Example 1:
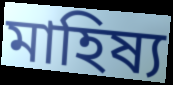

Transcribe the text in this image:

মাহিষ্য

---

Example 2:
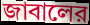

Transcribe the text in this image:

জাবালের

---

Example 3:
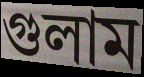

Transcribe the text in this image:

গুলাম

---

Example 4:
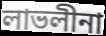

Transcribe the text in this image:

লাভলীনা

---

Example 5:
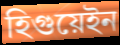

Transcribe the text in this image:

হিগুয়েইন